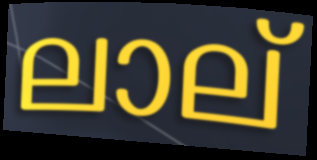
ലാല്